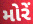
મોરેં